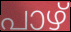
പാഴ്